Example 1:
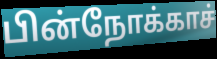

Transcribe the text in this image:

பின்நோக்காச்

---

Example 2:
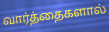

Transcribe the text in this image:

வார்த்தைகளால்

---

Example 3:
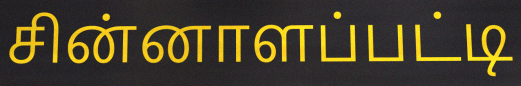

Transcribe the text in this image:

சின்னாளப்பட்டி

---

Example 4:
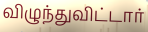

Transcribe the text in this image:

விழுந்துவிட்டார்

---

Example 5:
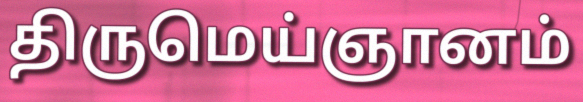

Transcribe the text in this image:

திருமெய்ஞானம்